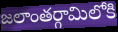
జలాంతర్గామిలోకి